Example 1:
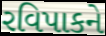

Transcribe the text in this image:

રવિપાકને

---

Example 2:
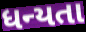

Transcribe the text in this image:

ધન્યતા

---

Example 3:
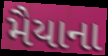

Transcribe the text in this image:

મૈયાના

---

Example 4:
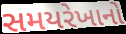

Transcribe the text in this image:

સમયરેખાનો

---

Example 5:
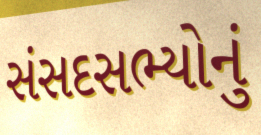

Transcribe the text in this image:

સંસદસભ્યોનું